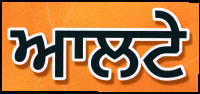
ਆਲਟੇ